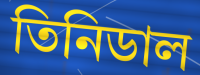
তিনিডাল